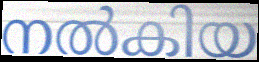
നൽകിയ